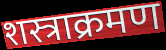
शस्त्राक्रमण